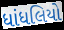
ધાંધલિયો